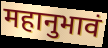
महानुभावं